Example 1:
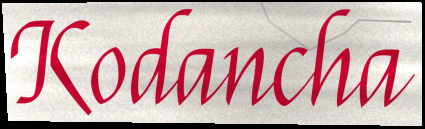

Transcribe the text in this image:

Kodancha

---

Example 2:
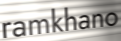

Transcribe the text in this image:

ramkhano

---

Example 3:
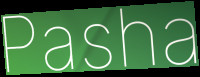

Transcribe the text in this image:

Pasha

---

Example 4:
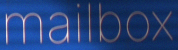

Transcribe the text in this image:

mailbox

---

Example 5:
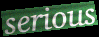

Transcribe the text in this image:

serious